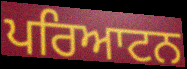
ਪਰਿਆਟਨ